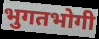
भुगतभोगी